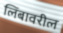
लिंबावरील